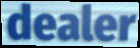
dealer